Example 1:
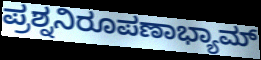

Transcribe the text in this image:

ಪ್ರಶ್ನನಿರೂಪಣಾಭ್ಯಾಮ್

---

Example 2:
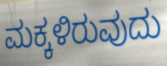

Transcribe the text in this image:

ಮಕ್ಕಳಿರುವುದು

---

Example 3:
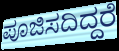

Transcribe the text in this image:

ಪೂಜಿಸದಿದ್ದರೆ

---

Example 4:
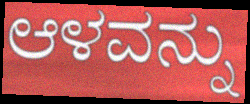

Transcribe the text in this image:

ಆಳವನ್ನು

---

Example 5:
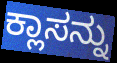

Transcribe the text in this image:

ಕ್ಲಾಸನ್ನು